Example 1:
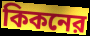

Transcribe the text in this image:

কিকনের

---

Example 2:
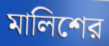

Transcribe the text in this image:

মালিশের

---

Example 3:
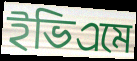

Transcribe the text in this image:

ইভিএমে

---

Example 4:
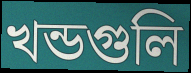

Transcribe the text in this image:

খন্ডগুলি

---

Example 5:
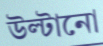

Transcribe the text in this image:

উল্টানো